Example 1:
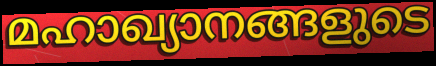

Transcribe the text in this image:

മഹാഖ്യാനങ്ങളുടെ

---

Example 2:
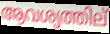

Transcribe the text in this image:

ആവശ്യത്തില്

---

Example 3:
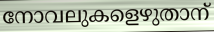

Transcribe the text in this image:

നോവലുകളെഴുതാന്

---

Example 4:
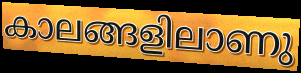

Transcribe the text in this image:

കാലങ്ങളിലാണു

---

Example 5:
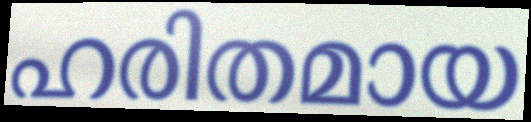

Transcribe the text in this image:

ഹരിതമായ